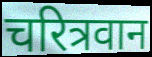
चरित्रवान